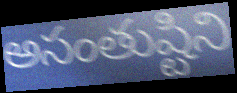
అసంతుష్టిని